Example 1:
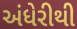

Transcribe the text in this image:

અંધેરીથી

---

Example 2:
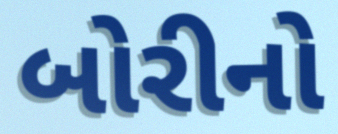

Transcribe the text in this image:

બોરીનો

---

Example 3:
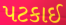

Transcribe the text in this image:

પટકાઈ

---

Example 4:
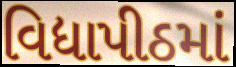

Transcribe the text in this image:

વિદ્યાપીઠમાં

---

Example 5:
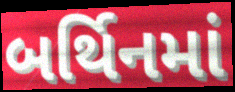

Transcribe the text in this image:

બર્થિનમાં